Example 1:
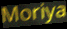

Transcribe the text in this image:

Moriya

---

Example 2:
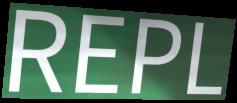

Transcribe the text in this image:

REPL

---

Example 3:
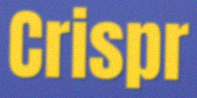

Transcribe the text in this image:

Crispr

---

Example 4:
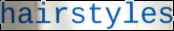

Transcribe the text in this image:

hairstyles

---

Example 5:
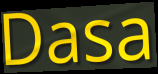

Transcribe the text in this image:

Dasa